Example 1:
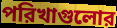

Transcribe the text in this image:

পরিখাগুলোর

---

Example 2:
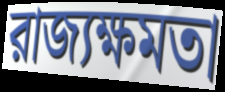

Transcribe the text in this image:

রাজ্যক্ষমতা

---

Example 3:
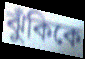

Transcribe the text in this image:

ঝুঁকিকে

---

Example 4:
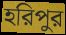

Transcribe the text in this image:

হরিপুর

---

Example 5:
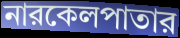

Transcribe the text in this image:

নারকেলপাতার